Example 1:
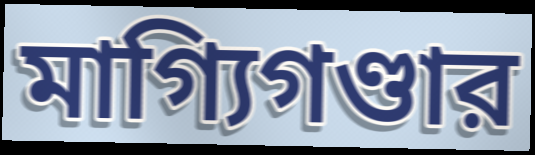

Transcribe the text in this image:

মাগ্যিগণ্ডার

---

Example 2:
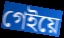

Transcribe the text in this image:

গেইয়ে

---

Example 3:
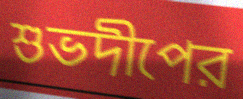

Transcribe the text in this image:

শুভদীপের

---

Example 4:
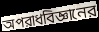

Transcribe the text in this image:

অপরাধবিজ্ঞানের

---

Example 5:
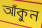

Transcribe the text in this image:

আঁকুন